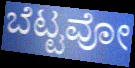
ಬೆಟ್ಟವೋ